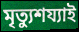
মৃত্যুশয্যাই